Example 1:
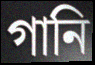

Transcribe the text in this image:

গানি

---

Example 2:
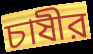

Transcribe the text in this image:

চাষীর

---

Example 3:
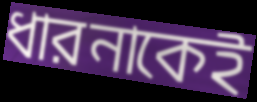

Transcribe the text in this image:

ধারনাকেই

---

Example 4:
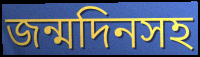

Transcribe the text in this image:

জন্মদিনসহ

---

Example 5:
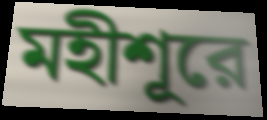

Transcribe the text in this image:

মহীশূরে